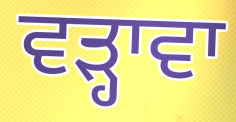
ਵੜ੍ਹਾਵਾ